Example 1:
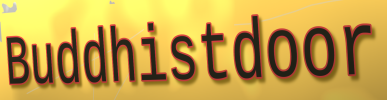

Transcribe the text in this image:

Buddhistdoor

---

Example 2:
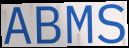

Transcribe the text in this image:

ABMS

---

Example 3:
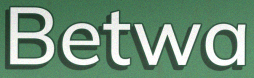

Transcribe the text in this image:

Betwa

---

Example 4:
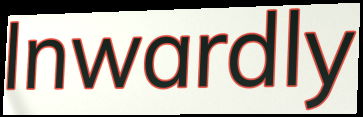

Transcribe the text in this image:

Inwardly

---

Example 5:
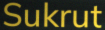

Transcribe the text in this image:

Sukrut